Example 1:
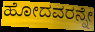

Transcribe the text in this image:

ಹೋದವರನ್ನೇ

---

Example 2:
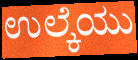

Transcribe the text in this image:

ಉಲ್ಕೆಯು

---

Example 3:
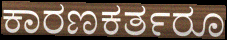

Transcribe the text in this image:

ಕಾರಣಕರ್ತರೂ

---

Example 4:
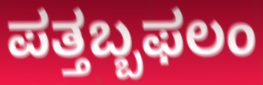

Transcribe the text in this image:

ಪತ್ತಬ್ಬಫಲಂ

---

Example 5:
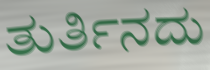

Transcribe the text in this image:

ತುರ್ತಿನದು